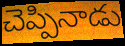
చెప్పినాడు